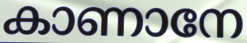
കാണാനേ